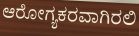
ಆರೋಗ್ಯಕರವಾಗಿರಲಿ